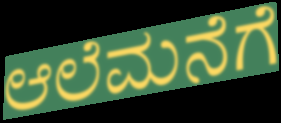
ಆಲೆಮನೆಗೆ